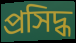
প্রসিদ্ধ